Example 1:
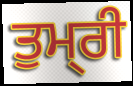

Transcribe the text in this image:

ਤੁਮ੍‍ਰੀ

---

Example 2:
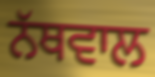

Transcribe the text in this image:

ਨੱਥਵਾਲ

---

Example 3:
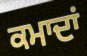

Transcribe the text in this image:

ਕਮਾਦਾਂ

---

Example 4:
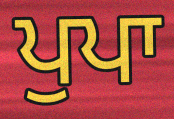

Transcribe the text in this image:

ਪੁਪਾ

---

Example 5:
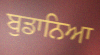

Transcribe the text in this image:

ਬੁਡਾਨਿਆ